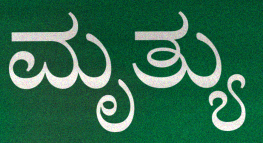
ಮೃತ್ಯು